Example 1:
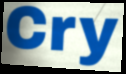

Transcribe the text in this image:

Cry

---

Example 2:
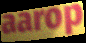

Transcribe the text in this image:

aarop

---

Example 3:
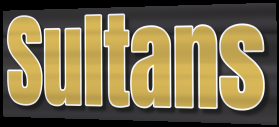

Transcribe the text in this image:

Sultans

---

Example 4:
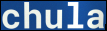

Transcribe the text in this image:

chula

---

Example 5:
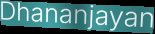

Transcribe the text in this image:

Dhananjayan